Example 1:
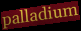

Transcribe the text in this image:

palladium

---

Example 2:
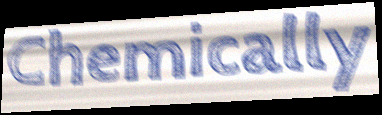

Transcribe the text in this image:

Chemically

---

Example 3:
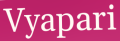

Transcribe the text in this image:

Vyapari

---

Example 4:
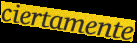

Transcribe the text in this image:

ciertamente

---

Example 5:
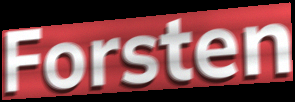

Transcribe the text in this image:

Forsten